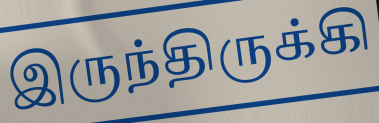
இருந்திருக்கி